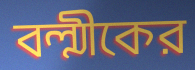
বল্মীকের